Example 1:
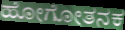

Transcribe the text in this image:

ಹೋಗೋತನಕ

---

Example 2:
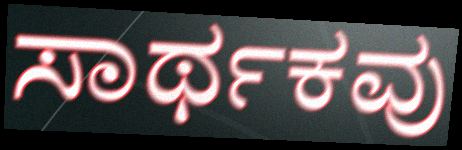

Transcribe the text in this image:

ಸಾರ್ಥಕವು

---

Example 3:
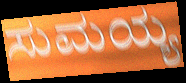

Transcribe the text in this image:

ಸುಮಯ್ಯ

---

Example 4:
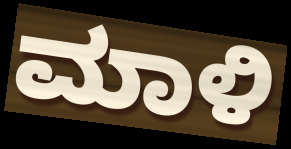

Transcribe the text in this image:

ಮಾಳಿ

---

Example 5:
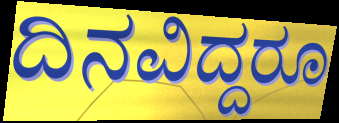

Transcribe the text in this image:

ದಿನವಿದ್ದರೂ